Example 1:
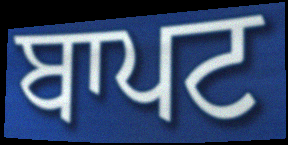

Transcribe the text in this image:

ਬਾਪਟ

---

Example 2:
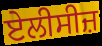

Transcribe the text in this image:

ਏਲੀਸੀਜ਼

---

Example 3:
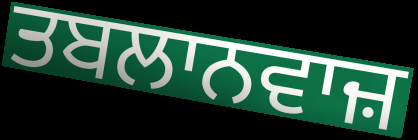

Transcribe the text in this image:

ਤਬਲਾਨਵਾਜ਼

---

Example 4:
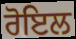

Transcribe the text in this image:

ਰੋਇਲ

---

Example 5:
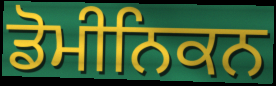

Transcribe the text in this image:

ਡੋਮੀਨਿਕਨ